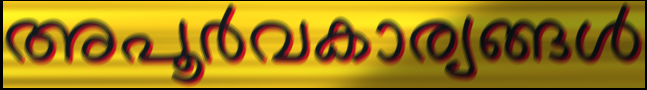
അപൂർവകാര്യങ്ങൾ